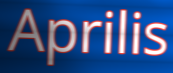
Aprilis